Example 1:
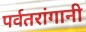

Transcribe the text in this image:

पर्वतरांगानी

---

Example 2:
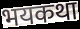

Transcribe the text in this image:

भयकथा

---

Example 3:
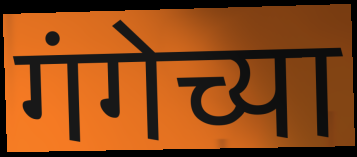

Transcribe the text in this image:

गंगेच्या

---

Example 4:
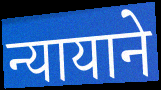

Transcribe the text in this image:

न्यायाने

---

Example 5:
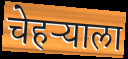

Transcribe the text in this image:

चेहऱ्याला